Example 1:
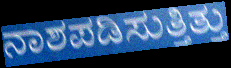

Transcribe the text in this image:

ನಾಶಪಡಿಸುತ್ತಿತ್ತು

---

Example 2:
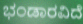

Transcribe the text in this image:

ಭಂಡಾರವಿದೆ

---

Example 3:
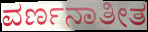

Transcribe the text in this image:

ವರ್ಣನಾತೀತ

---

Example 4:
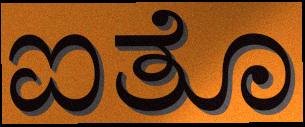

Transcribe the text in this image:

ಐತೊ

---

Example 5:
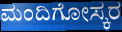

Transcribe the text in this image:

ಮಂದಿಗೋಸ್ಕರ